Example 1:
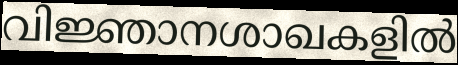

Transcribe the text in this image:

വിജ്ഞാനശാഖകളിൽ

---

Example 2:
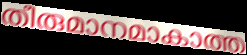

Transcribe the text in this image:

തീരുമാനമാകാത്ത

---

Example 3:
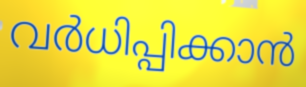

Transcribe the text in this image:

വർധിപ്പിക്കാൻ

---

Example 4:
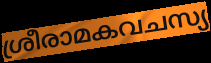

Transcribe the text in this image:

ശ്രീരാമകവചസ്യ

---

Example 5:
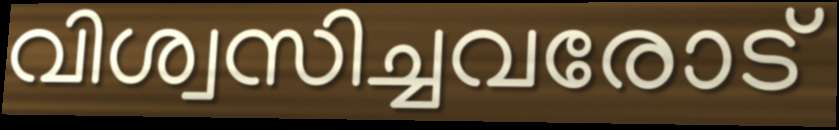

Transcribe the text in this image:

വിശ്വസിച്ചവരോട്